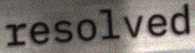
resolved